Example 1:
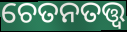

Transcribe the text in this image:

ଚେତନତତ୍ତ୍ୱ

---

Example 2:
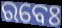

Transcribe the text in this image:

ରବେଃ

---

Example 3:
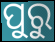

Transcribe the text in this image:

ପୁରୁ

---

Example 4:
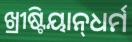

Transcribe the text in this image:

ଖ୍ରୀଷ୍ଟିୟାନ୍‌ଧର୍ମ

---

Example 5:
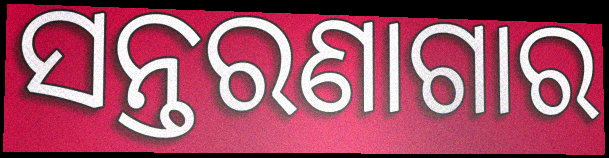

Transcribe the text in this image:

ସନ୍ତରଣାଗାର